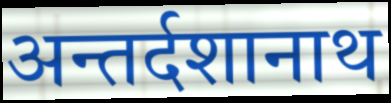
अन्तर्दशानाथ